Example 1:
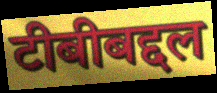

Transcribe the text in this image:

टीबीबद्दल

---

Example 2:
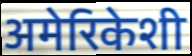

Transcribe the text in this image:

अमेरिकेशी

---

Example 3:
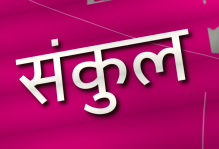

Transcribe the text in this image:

संकुल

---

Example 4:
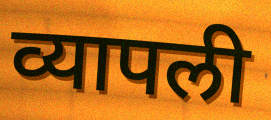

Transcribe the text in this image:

व्यापली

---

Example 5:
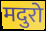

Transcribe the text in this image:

मदुरो